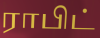
ராபிட்